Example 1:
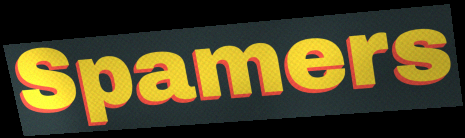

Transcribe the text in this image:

Spamers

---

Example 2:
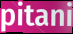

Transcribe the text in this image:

pitani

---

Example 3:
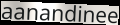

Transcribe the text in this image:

aanandinee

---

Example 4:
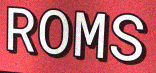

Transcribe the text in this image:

ROMS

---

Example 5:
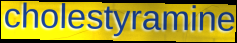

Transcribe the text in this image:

cholestyramine